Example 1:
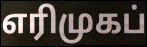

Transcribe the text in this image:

எரிமுகப்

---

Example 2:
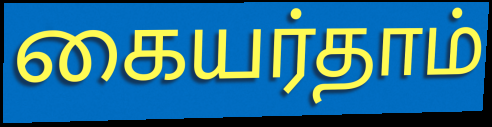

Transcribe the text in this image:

கையர்தாம்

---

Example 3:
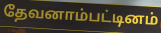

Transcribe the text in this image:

தேவனாம்பட்டினம்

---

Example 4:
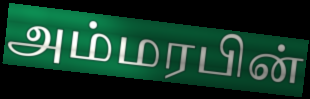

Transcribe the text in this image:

அம்மரபின்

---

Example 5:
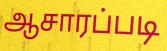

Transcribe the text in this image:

ஆசாரப்படி